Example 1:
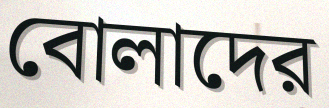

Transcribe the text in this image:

বোলাদের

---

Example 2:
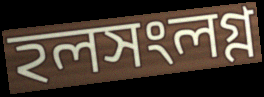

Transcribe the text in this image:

হলসংলগ্ন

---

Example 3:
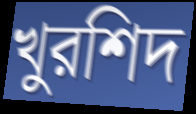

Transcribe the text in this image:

খুরশিদ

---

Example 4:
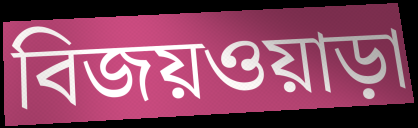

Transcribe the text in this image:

বিজয়ওয়াড়া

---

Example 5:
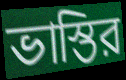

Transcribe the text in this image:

ভাস্তির